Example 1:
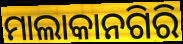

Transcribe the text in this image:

ମାଲାକାନଗିରି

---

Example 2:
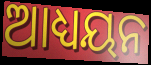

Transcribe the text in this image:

ଆଧ୍ୟୟନ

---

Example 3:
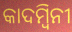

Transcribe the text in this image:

କାଦମ୍ୱିନୀ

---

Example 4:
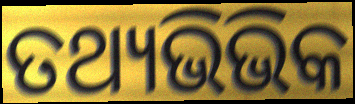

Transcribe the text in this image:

ତଥ୍ୟଭିଭିକ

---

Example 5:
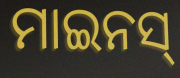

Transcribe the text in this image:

ମାଇନସ୍